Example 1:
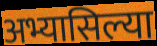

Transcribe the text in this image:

अभ्यासिल्या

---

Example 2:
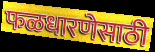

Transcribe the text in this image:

फळधारणेसाठी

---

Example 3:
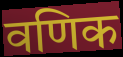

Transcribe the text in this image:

वणिक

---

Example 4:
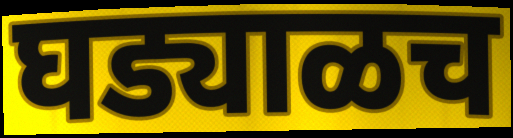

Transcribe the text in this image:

घड्याळच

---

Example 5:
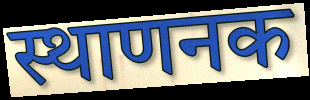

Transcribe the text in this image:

स्थाणनक